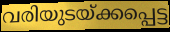
വരിയുടയ്ക്കപ്പെട്ട